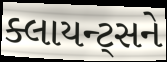
ક્લાયન્ટ્સને